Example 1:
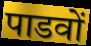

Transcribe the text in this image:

पाडवों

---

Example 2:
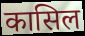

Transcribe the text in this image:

कासिल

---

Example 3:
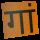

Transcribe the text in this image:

गां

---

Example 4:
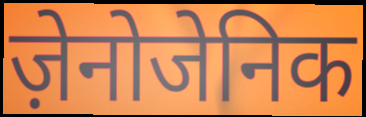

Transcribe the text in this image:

ज़ेनोजेनिक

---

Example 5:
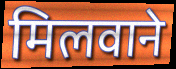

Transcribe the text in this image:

मिलवाने